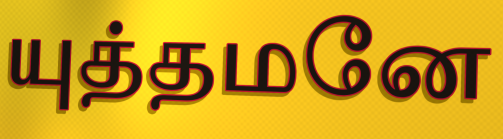
யுத்தமனே